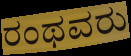
ರಂಥವರು